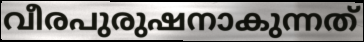
വീരപുരുഷനാകുന്നത്